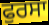
ਫੁਰਸਾ